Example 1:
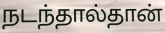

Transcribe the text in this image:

நடந்தால்தான்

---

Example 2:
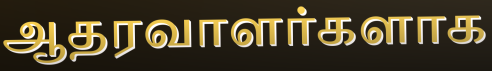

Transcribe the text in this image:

ஆதரவாளர்களாக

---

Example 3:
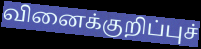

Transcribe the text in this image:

வினைக்குறிப்புச்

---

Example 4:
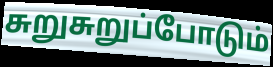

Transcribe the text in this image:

சுறுசுறுப்போடும்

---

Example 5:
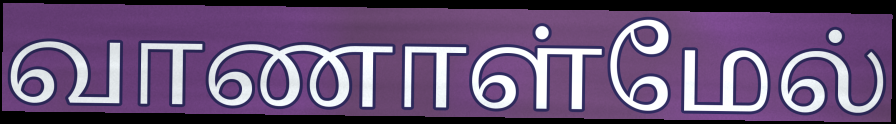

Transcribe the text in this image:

வாணாள்மேல்